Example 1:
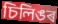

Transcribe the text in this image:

চিলিঙৰ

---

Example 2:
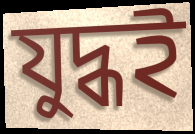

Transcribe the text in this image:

যুদ্ধই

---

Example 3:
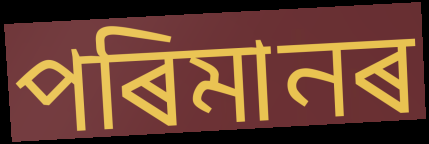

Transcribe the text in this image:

পৰিমানৰ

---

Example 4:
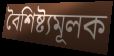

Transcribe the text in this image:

বৈশিষ্ট্যমূলক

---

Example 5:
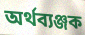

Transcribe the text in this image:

অৰ্থব্যঞ্জক